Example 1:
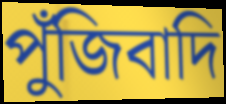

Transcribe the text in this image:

পুঁজিবাদি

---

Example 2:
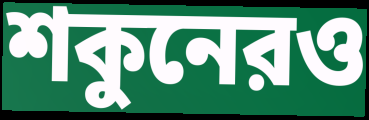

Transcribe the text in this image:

শকুনেরও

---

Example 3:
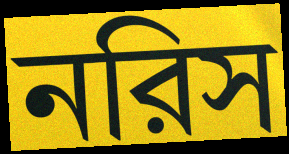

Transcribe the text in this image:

নরিস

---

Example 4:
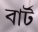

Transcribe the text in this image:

বার্ট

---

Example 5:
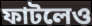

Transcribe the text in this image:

ফাটলেও